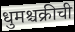
धुमश्चक्रीची